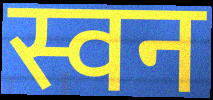
स्वन